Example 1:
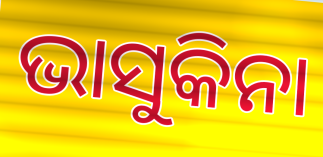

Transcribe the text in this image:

ଭାସୁକିନା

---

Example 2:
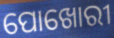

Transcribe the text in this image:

ପୋଖୋରୀ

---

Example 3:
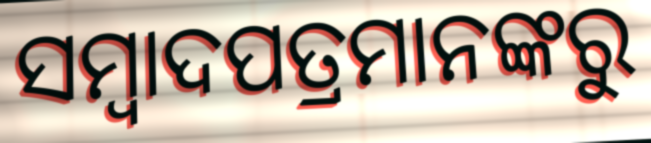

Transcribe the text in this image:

ସମ୍ୱାଦପତ୍ରମାନଙ୍କରୁ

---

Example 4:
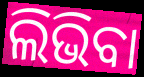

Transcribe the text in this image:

ଲିଭିବା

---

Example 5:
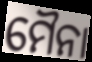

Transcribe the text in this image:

ମୈନା